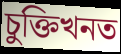
চুক্তিখনত